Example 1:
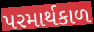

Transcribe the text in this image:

પરમાર્થકાળ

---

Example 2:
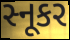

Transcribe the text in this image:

સ્નૂકર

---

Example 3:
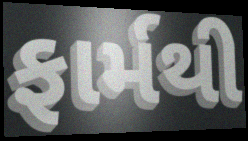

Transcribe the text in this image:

ફાર્મથી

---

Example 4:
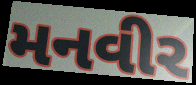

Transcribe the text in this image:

મનવીર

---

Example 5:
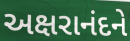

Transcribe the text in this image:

અક્ષરાનંદને